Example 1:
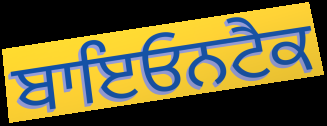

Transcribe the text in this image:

ਬਾਇਓਨਟੈਕ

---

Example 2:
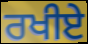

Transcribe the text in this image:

ਰਖੀਏ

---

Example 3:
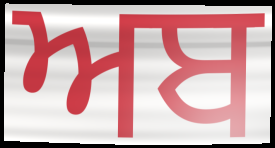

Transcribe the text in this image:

ਅਬ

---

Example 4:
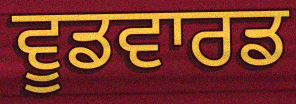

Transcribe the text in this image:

ਵੂਡਵਾਰਡ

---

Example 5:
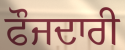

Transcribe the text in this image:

ਫੌਜਦਾਰੀ